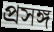
প্ৰসঙ্গ